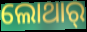
ଲୋଥାର୍